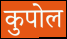
कुपोल